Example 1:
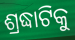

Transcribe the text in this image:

ଶ୍ରଦ୍ଧାଟିକୁ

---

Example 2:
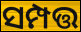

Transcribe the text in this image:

ସମ୍ପତ୍ତ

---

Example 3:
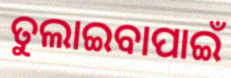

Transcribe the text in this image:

ତୁଲାଇବାପାଇଁ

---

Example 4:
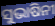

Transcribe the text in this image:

ସୁଭାଷିନୀ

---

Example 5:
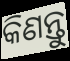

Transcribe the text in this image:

କିଣନ୍ତୁ